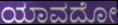
ಯಾವದೋ